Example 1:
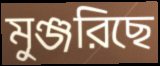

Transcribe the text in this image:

মুঞ্জরিছে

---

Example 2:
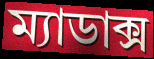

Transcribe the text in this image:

ম্যাডাক্স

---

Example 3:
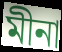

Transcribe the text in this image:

মীনা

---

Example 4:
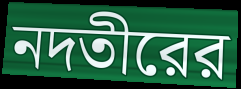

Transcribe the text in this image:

নদতীরের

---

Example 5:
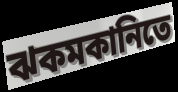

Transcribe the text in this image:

ঝকমকানিতে